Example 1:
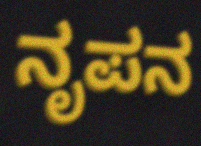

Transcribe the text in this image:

ನೃಪನ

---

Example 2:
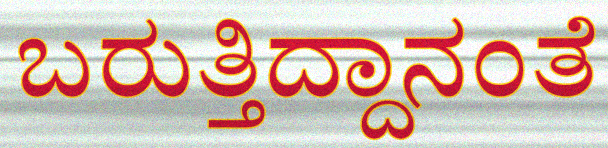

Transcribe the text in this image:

ಬರುತ್ತಿದ್ದಾನಂತೆ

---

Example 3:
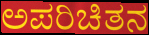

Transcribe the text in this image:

ಅಪರಿಚಿತನ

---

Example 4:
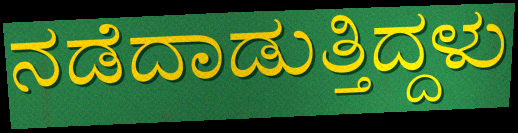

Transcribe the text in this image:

ನಡೆದಾಡುತ್ತಿದ್ದಳು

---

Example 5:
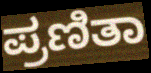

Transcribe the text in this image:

ಪ್ರಣಿತಾ